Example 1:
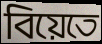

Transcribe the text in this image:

বিয়েতে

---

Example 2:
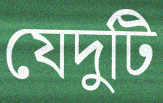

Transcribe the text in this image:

যেদুটি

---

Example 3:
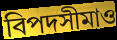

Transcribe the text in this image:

বিপদসীমাও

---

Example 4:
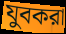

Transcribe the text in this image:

যুবকরা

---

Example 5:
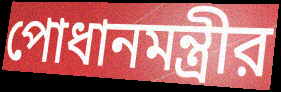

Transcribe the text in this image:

পোধানমন্ত্রীর